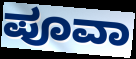
ಪೂವಾ